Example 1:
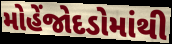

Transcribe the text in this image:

મોહેંજોદડોમાંથી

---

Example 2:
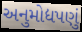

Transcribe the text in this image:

અનુમોદ્યપણું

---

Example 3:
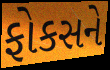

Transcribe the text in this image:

ફોકસને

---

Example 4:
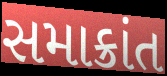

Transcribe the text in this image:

સમાક્રાંત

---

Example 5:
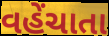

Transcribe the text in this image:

વહેંચાતા